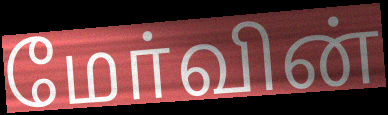
மேர்வின்